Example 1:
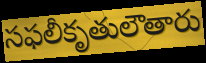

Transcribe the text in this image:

సఫలీకృతులౌతారు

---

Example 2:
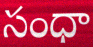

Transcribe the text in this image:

సంధా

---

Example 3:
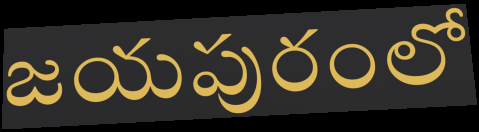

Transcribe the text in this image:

జయపురంలో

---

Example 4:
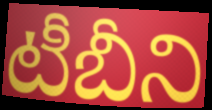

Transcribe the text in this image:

టీబీని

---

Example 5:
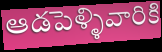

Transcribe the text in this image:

ఆడపెళ్ళివారికి